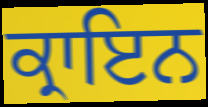
ਕ੍ਰਾਇਨ